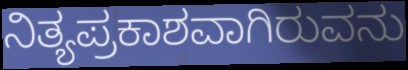
ನಿತ್ಯಪ್ರಕಾಶವಾಗಿರುವನು